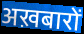
अख़बारों